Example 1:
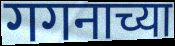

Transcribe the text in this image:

गगनाच्या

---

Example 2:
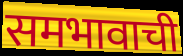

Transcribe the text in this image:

समभावाची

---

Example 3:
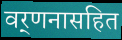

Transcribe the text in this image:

वर्णनासहित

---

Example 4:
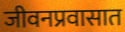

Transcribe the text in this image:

जीवनप्रवासात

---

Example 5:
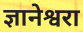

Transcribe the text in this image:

ज्ञानेश्वरा